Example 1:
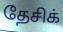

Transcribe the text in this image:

தேசிக்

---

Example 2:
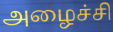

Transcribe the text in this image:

அழைச்சி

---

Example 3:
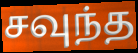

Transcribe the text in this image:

சவுந்த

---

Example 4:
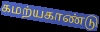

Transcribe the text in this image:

கமற்யகாண்டு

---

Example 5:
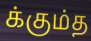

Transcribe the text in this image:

க்கும்த